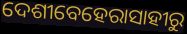
ଦେଶୀବେହେରାସାହୀରୁ